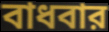
বাধবার